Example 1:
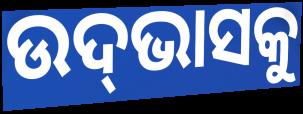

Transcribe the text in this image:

ଉଦ୍‌ଭାସକୁ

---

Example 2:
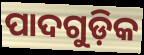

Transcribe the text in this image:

ପାଦଗୁଡ଼ିକ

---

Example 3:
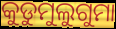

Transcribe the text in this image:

କୁଡୁମୁଲୁଗୁମା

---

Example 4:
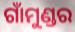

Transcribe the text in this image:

ଗାଁମୁଣ୍ଡର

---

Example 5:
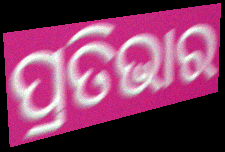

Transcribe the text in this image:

ପ୍ରତିଭାର